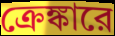
ক্রেঙ্কারে